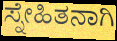
ಸ್ನೇಹಿತನಾಗಿ